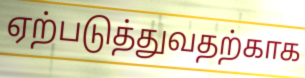
ஏற்படுத்துவதற்காக